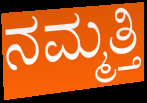
ನಮ್ಮತ್ತಿ